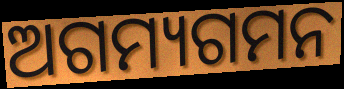
ଅଗମ୍ୟଗମନ